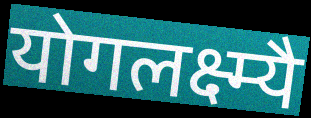
योगलक्ष्म्यै